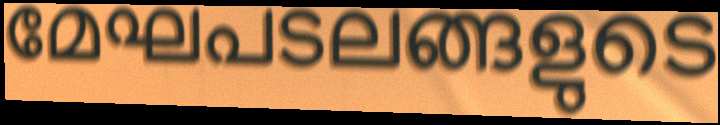
മേഘപടലങ്ങളുടെ